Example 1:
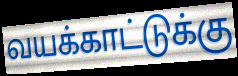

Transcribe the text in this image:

வயக்காட்டுக்கு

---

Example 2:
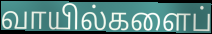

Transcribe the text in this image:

வாயில்களைப்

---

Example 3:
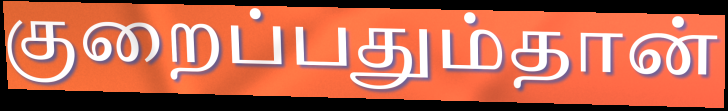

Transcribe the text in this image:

குறைப்பதும்தான்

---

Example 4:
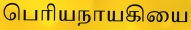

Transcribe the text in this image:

பெரியநாயகியை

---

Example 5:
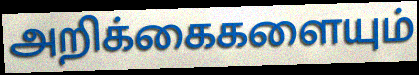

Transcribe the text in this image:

அறிக்கைகளையும்